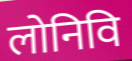
लोनिवि